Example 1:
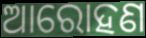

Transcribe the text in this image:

ଆରୋହଣ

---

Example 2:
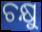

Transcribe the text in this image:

ଚକ୍ଷୁ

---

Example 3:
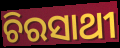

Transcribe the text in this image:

ଚିରସାଥୀ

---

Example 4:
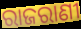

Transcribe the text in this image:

ରାଜରାଣୀ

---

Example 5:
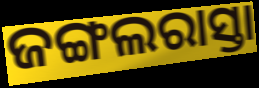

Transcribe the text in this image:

ଜଙ୍ଗଲରାସ୍ତା